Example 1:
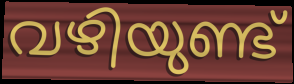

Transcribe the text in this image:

വഴിയുണ്ട്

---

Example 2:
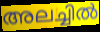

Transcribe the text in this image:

അലച്ചിൽ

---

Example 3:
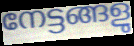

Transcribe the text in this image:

നേട്ടങ്ങളു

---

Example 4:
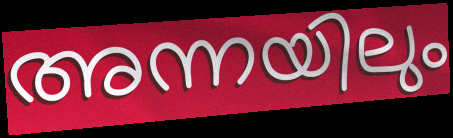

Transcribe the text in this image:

അന്നയിലും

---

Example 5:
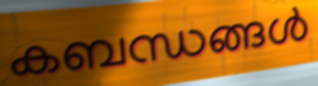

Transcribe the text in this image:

കബന്ധങ്ങൾ